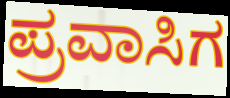
ಪ್ರವಾಸಿಗ